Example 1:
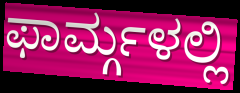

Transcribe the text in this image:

ಫಾರ್ಮ್ಗಳಲ್ಲಿ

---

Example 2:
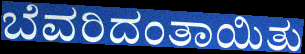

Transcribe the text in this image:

ಬೆವರಿದಂತಾಯಿತು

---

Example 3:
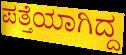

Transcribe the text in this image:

ಪತ್ತೆಯಾಗಿದ್ದ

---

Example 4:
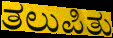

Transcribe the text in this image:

ತಲುಪಿತು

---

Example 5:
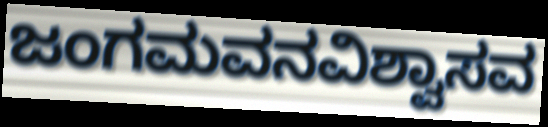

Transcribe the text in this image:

ಜಂಗಮವನವಿಶ್ವಾಸವ